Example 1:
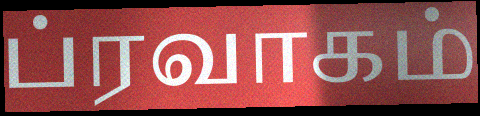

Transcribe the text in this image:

ப்ரவாகம்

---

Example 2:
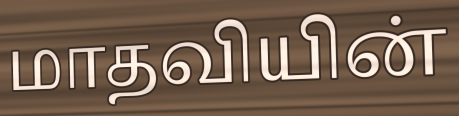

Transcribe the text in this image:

மாதவியின்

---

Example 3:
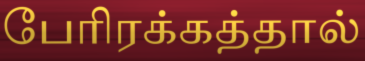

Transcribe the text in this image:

பேரிரக்கத்தால்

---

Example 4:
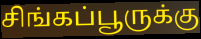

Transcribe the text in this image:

சிங்கப்பூருக்கு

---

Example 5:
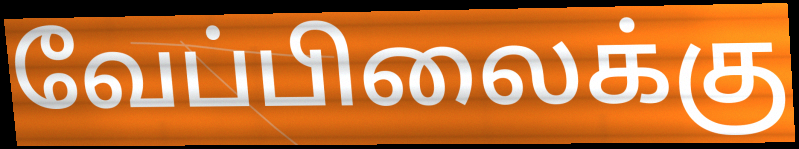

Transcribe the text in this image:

வேப்பிலைக்கு